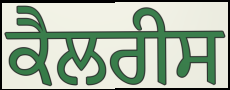
ਕੈਲਰੀਸ